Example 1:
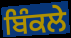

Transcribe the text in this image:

ਬਿੰਕਲੇ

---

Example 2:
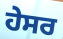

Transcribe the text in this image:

ਹੇਸਰ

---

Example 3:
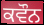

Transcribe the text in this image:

ਕਵੌਨ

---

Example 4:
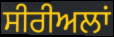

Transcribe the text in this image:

ਸੀਰੀਅਲਾਂ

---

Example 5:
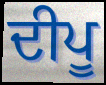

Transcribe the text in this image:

ਦੀਪੂ